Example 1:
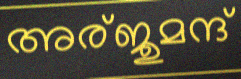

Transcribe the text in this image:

അര്ജുമന്ദ്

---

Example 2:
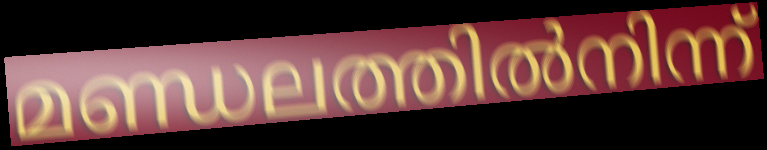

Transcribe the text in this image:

മണ്ഡലത്തിൽനിന്ന്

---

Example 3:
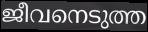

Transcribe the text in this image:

ജീവനെടുത്ത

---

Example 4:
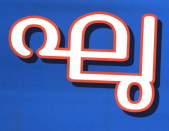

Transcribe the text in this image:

ഘു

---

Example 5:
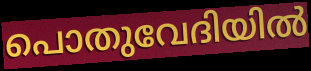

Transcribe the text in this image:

പൊതുവേദിയിൽ